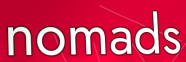
nomads